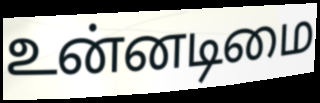
உன்னடிமை